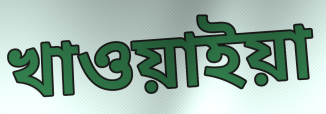
খাওয়াইয়া